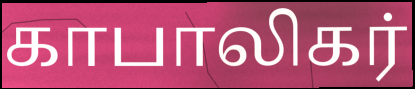
காபாலிகர்